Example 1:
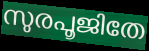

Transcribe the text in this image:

സുരപൂജിതേ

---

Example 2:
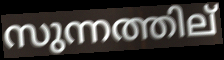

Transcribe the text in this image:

സുന്നത്തില്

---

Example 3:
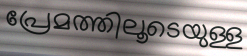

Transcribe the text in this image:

പ്രേമത്തിലൂടെയുള്ള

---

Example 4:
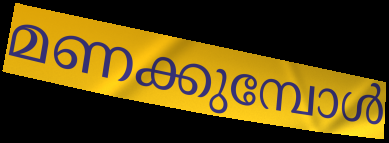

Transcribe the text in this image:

മണക്കുമ്പോൾ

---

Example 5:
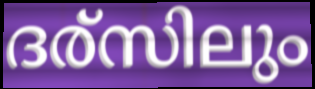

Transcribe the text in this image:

ദര്സിലും